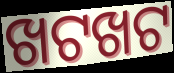
ଖଟଖଟ